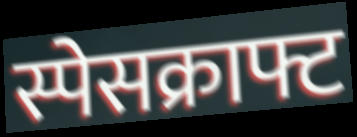
स्‍पेसक्राफ्ट